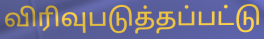
விரிவுபடுத்தப்பட்டு